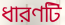
ধারণটি